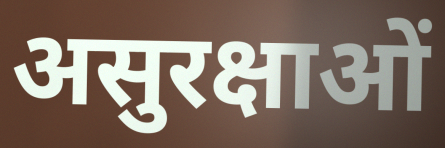
असुरक्षाओं